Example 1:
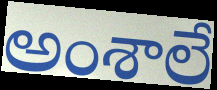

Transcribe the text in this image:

అంశాలే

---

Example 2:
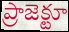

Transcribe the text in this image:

ప్రాజెక్టూ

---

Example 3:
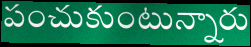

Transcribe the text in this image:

పంచుకుంటున్నారు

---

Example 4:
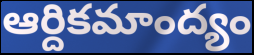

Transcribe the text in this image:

ఆర్దికమాంద్యం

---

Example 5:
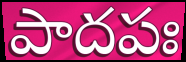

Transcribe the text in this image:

పాదపః